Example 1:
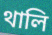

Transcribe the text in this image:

থালি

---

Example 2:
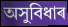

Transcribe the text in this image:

অসুবিধাৰ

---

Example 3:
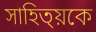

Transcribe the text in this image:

সাহিত্য়কে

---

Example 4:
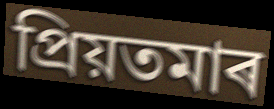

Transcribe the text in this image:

প্ৰিয়তমাৰ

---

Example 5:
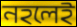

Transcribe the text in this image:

নহলেই